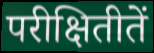
परीक्षितीतें